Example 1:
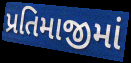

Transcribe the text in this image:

પ્રતિમાજીમાં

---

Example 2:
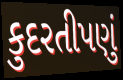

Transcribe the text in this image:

કુદરતીપણું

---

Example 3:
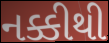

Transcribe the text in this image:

નક્કીથી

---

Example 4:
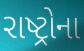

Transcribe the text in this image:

રાષ્ટ્રોના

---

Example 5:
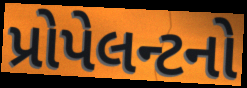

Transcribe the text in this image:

પ્રોપેલન્ટનો